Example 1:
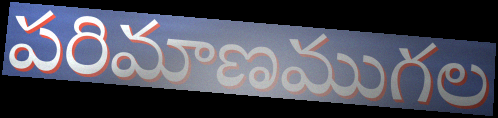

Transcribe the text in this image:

పరిమాణముగల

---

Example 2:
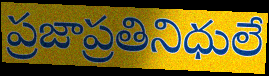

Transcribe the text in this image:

ప్రజాప్రతినిధులే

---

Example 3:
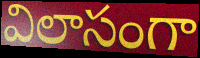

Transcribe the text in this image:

విలాసంగా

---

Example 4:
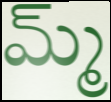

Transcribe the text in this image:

మ్మ్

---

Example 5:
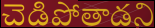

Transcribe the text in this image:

చెడిపోతాడని